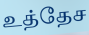
உத்தேச